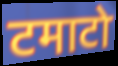
टमाटो